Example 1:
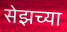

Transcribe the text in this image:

सेझच्या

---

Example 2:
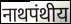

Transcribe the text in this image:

नाथपंथीय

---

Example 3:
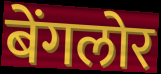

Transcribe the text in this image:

बेंगलोर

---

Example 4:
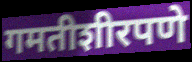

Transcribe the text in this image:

गमतीशीरपणे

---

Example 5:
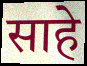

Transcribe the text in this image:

साहे